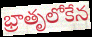
భ్రాతృలోకేన